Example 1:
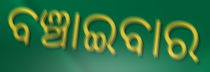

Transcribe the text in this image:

ବଞ୍ଚାଇବାର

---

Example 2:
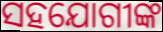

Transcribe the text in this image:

ସହଯୋଗୀଙ୍କ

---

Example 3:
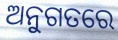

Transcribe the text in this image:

ଅନୁଗତରେ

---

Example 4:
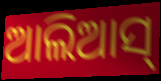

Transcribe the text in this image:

ଆଲିଆସ୍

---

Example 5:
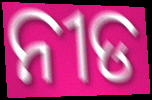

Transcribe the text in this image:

ନୀଡ